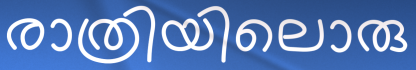
രാത്രിയിലൊരു